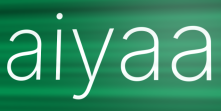
aiyaa